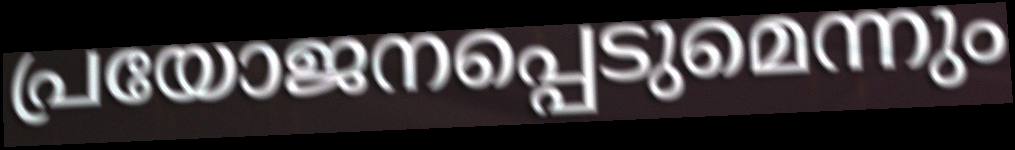
പ്രയോജനപ്പെടുമെന്നും